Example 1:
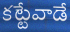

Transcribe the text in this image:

కట్టేవాడే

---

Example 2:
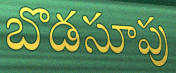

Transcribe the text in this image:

బొడసూపు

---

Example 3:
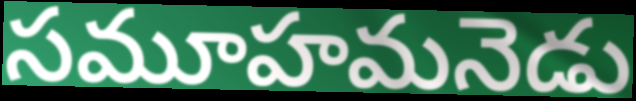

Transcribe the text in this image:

సమూహమనెడు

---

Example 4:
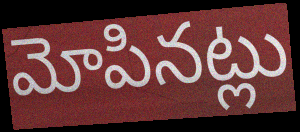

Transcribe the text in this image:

మోపినట్లు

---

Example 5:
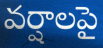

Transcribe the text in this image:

వర్షాలపై